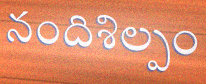
నందిశిల్పం